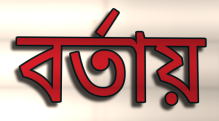
বর্তায়